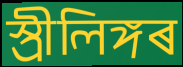
স্ত্ৰীলিঙ্গৰ